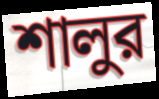
শালুর